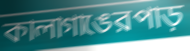
কালাগাঙেরপাড়